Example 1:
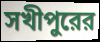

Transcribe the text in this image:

সখীপুরের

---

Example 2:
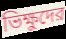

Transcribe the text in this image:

ভিক্ষুদের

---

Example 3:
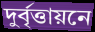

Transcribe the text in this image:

দুর্বৃত্তায়নে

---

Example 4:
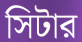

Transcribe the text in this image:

সিটার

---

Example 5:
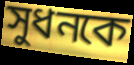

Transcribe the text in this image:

সুধনকে